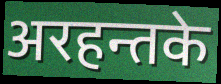
अरहन्तके